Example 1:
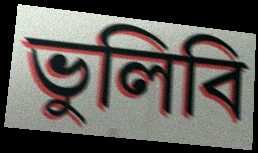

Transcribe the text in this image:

ভুলিবি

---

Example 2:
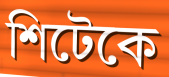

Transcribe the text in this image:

শিটেকে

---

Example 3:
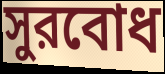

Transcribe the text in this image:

সুরবোধ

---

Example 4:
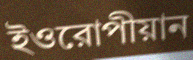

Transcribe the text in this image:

ইওরোপীয়ান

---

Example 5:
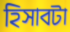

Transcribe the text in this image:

হিসাবটা